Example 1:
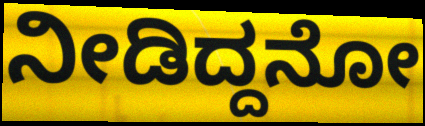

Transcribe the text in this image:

ನೀಡಿದ್ದನೋ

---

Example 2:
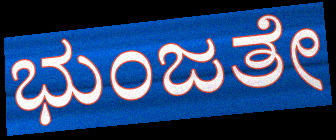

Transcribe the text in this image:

ಭುಂಜತೇ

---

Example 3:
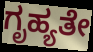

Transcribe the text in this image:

ಗೃಹ್ಯತೇ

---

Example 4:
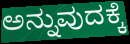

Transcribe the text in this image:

ಅನ್ನುವುದಕ್ಕೆ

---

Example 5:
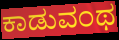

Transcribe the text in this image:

ಕಾಡುವಂಥ